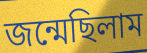
জন্মেছিলাম